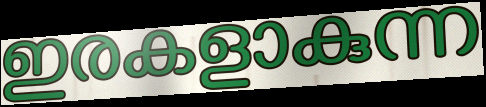
ഇരകളാകുന്ന